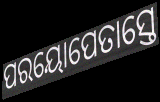
ପରୟୋପେତାସ୍ତେ